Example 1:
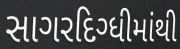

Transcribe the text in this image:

સાગરદિગ્ધીમાંથી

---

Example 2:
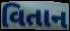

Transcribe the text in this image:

વિતાન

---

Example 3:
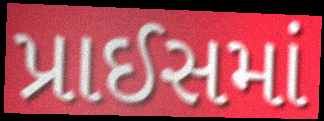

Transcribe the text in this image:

પ્રાઈસમાં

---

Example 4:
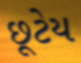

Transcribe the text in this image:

છૂટેય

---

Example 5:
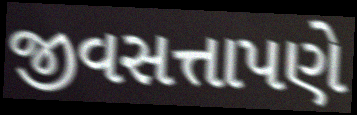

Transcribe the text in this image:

જીવસત્તાપણે